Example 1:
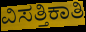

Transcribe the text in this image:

ವಿಸತ್ತಿಕಾತಿ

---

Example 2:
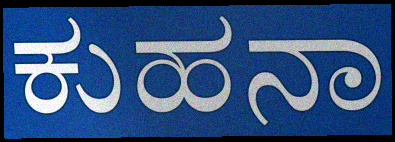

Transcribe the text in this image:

ಕುಹನಾ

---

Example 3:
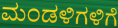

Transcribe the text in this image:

ಮಂಡಳಿಗಳಿಗೆ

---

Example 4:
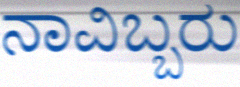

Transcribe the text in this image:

ನಾವಿಬ್ಬರು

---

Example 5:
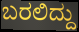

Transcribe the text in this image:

ಬರಲಿದ್ದು